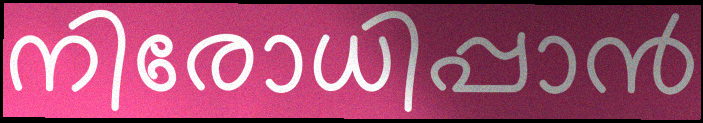
നിരോധിപ്പാൻ